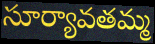
సూర్యావతమ్మ